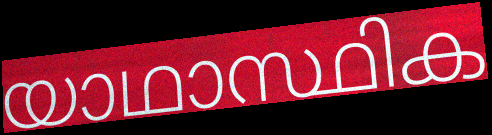
യാഥാസ്ഥിക